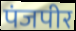
पंजपीर